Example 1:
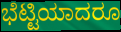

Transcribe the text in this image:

ಭೆಟ್ಟಿಯಾದರೂ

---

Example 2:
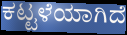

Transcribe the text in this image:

ಕಟ್ಟಳೆಯಾಗಿದೆ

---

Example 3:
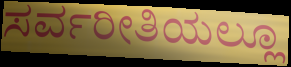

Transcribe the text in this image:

ಸರ್ವರೀತಿಯಲ್ಲೂ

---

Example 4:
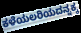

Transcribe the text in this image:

ಕಳೆಯಲರಿಯದನ್ನಕ್ಕ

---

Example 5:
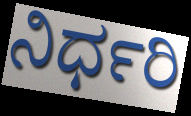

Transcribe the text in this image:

ನಿರ್ಧರಿ